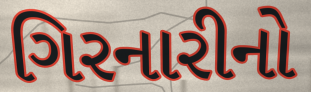
ગિરનારીનો